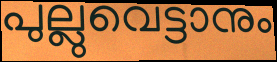
പുല്ലുവെട്ടാനും